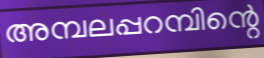
അമ്പലപ്പറമ്പിന്റെ